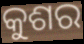
କୁଶର